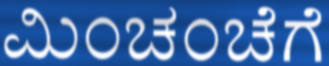
ಮಿಂಚಂಚೆಗೆ